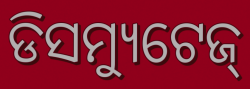
ଡିସମ୍ୟୁଟେଜ୍